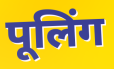
पूलिंग